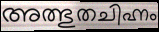
അത്ഭുതചിഹ്നം